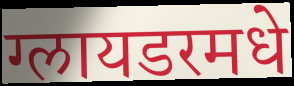
ग्लायडरमधे